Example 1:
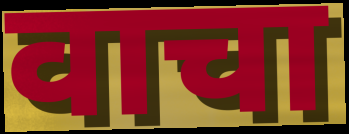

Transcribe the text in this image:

वाचा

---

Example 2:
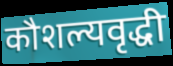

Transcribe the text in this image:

कौशल्यवृद्धी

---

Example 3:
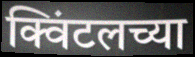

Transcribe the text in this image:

क्विंटलच्या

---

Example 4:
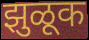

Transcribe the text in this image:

झुळूक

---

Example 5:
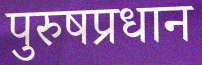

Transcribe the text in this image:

पुरुषप्रधान